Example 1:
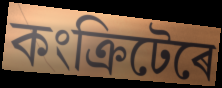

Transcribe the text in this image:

কংক্ৰিটেৰে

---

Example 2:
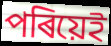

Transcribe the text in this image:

পৰিয়েই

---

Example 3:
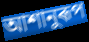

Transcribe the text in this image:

আশানুৰূপ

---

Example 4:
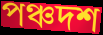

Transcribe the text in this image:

পঞ্চদশ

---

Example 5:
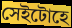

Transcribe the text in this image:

সেইটোহে